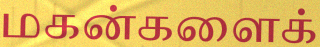
மகன்களைக்